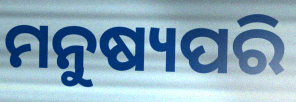
ମନୁଷ୍ୟପରି